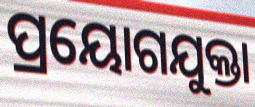
ପ୍ରୟୋଗଯୁକ୍ତା